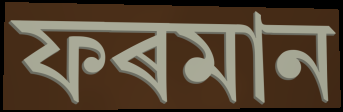
ফৰমান